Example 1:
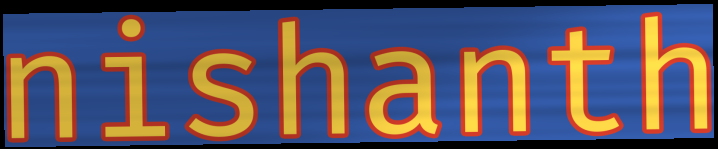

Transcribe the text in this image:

nishanth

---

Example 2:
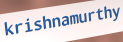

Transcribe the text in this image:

krishnamurthy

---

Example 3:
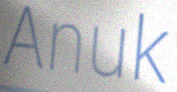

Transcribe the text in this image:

Anuk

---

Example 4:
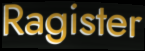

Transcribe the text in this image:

Ragister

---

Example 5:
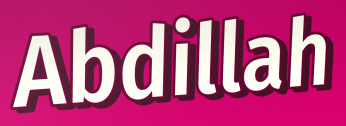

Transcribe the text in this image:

Abdillah